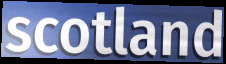
scotland